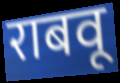
राबवू